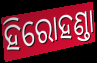
ହିରୋହଣ୍ଡା